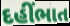
દહીંભાત